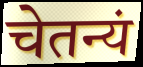
चेतन्यं